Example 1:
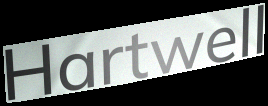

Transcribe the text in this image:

Hartwell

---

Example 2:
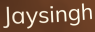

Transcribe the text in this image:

Jaysingh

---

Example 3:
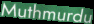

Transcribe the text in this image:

Muthmurdu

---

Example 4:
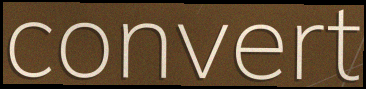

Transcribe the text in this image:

convert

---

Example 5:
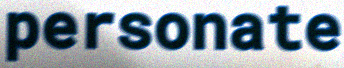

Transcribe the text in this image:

personate